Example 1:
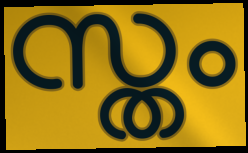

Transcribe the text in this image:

സ്തം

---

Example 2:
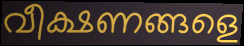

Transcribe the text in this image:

വീക്ഷണങ്ങളെ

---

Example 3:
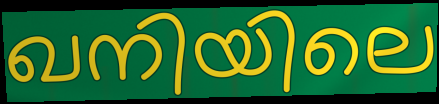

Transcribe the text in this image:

ഖനിയിലെ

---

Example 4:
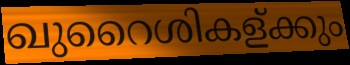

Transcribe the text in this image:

ഖുറൈശികള്ക്കും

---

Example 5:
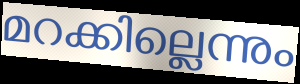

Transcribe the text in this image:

മറക്കില്ലെന്നും